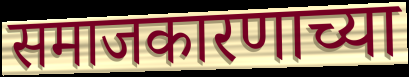
समाजकारणाच्या